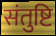
संतुष्टि